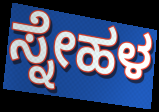
ಸ್ನೇಹಳ